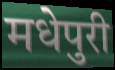
मधेपुरी